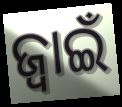
ଜ୍ଵାଇଁ